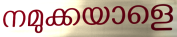
നമുക്കയാളെ